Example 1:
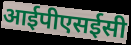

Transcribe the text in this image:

आईपीएसईसी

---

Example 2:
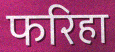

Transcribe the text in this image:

फरिहा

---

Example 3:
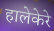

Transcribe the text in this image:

हालेकेरे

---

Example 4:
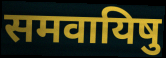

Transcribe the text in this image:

समवायिषु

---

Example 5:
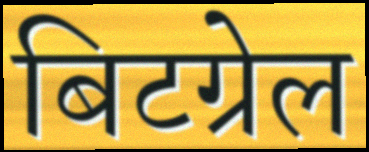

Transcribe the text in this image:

बिटग्रेल